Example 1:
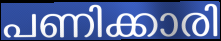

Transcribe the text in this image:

പണിക്കാരി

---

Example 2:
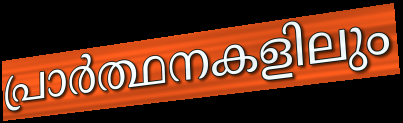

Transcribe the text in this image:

പ്രാർത്ഥനകളിലും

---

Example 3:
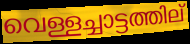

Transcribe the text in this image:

വെള്ളച്ചാട്ടത്തില്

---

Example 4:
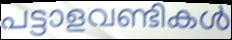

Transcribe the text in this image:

പട്ടാളവണ്ടികൾ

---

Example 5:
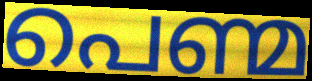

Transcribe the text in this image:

പെണ്മ